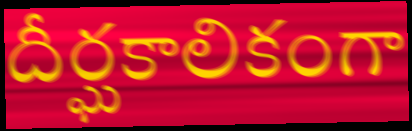
దీర్ఘకాలికంగా